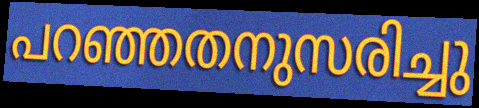
പറഞ്ഞതനുസരിച്ചു